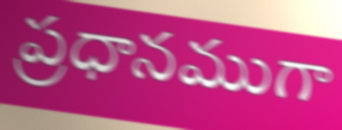
ప్రధానముగా